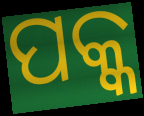
ପକ୍କ